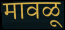
मावळू